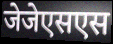
जेजेएसएस